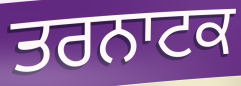
ਤਰਨਾਟਕ